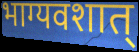
भाग्यवशात्